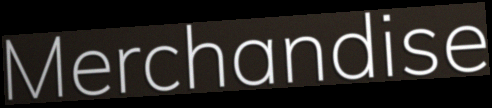
Merchandise